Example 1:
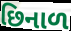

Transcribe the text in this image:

છિનાળ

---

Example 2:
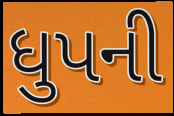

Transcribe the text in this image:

ધુપની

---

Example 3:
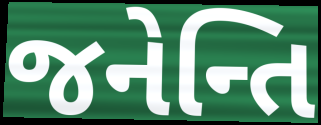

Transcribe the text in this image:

જનેન્તિ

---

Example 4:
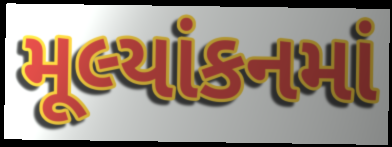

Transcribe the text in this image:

મૂલ્યાંકનમાં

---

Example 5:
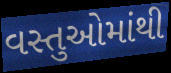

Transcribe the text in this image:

વસ્તુઓમાંથી